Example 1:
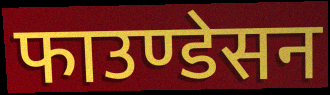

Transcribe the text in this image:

फाउण्डेसन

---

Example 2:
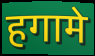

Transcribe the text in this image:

हगामे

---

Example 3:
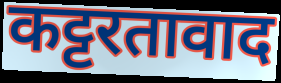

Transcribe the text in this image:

कट्टरतावाद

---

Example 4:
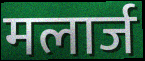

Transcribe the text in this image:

मलार्ज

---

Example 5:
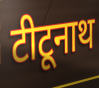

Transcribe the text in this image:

टीटूनाथ